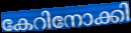
കേറിനോക്കി